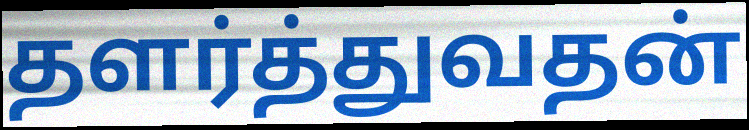
தளர்த்துவதன்